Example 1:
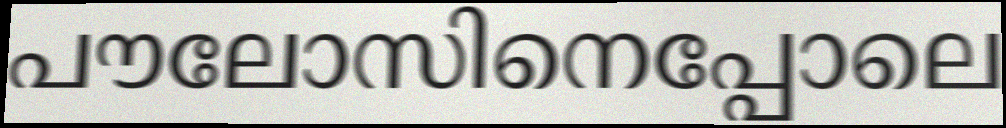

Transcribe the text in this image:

പൗലോസിനെപ്പോലെ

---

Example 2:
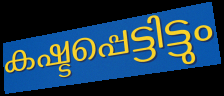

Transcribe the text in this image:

കഷ്ടപ്പെട്ടിട്ടും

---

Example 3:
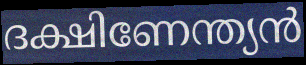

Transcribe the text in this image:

ദക്ഷിണേന്ത്യൻ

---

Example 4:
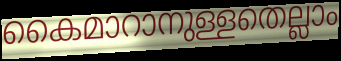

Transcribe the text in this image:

കൈമാറാനുള്ളതെല്ലാം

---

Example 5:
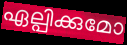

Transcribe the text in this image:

ഏല്പിക്കുമോ